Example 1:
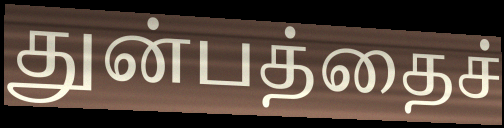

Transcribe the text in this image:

துன்பத்தைச்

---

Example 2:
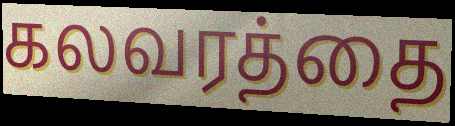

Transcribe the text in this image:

கலவரத்தை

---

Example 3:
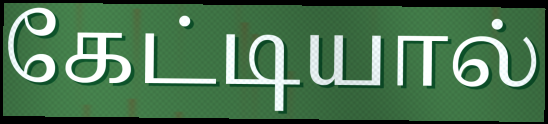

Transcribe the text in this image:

கேட்டியால்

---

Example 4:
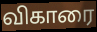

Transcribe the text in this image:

விகாரை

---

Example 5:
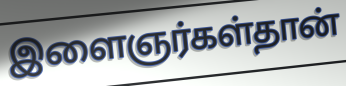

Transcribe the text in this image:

இளைஞர்கள்தான்